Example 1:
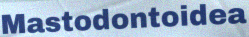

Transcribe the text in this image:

Mastodontoidea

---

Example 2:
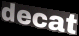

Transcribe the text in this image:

decat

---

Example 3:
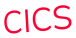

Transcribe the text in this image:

CICS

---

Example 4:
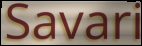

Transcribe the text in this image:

Savari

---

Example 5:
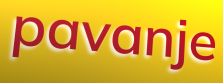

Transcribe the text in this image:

pavanje